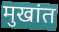
मुखांत